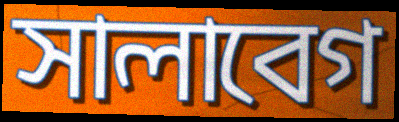
সালাবেগ